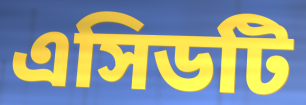
এসিডটি